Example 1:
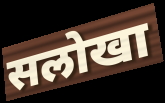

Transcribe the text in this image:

सलोखा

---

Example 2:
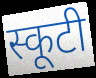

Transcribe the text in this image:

स्कूटी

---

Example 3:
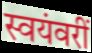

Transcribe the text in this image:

स्वयंवरीं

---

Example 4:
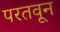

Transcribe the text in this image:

परतवून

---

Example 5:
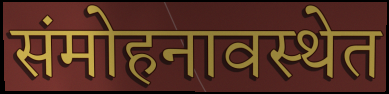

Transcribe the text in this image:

संमोहनावस्थेत